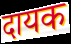
दायक